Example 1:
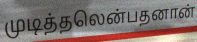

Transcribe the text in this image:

முடித்தலென்பதனான்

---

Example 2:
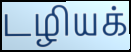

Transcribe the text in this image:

டழியக்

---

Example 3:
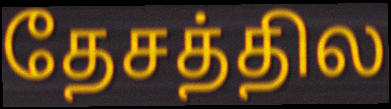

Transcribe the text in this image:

தேசத்தில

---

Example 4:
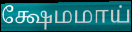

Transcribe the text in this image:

க்ஷேமமாய்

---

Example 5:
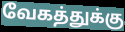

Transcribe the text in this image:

வேகத்துக்கு